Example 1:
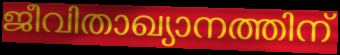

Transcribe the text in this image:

ജീവിതാഖ്യാനത്തിന്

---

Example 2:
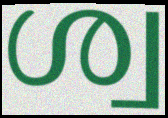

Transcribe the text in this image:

ശ്വ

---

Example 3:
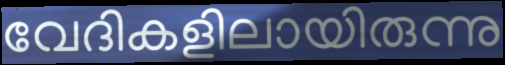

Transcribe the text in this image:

വേദികളിലായിരുന്നു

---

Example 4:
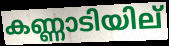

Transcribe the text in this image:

കണ്ണാടിയില്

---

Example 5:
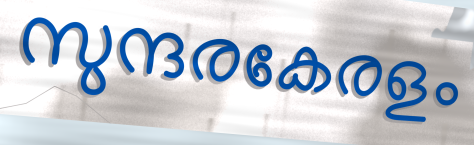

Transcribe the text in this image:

സുന്ദരകേരളം